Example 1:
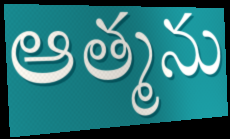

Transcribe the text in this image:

ఆత్మను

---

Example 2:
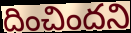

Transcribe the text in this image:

దించిందని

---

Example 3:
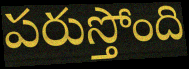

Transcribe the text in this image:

పరుస్తోంది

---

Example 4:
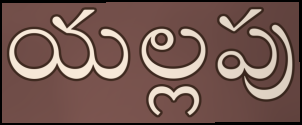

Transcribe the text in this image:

యల్లపు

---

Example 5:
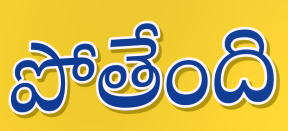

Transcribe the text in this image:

పోతేంది